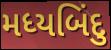
મધ્યબિંદુ